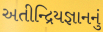
અતીન્દ્રિયજ્ઞાનનું